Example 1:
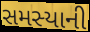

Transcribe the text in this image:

સમસ્યાની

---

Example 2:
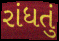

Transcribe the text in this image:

રાંધતું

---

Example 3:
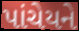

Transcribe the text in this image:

પાંચેયને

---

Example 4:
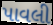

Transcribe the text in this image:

પાવલી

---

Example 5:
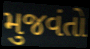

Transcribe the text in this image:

મુજવંતો